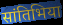
सांतिभिया